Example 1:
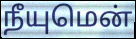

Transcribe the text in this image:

நீயுமென்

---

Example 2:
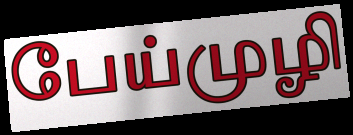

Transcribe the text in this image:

பேய்முழி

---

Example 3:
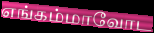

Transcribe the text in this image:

எங்கம்மாவோட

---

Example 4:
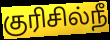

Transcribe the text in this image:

குரிசில்நீ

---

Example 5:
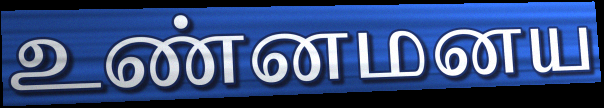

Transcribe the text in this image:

உண்னமனய